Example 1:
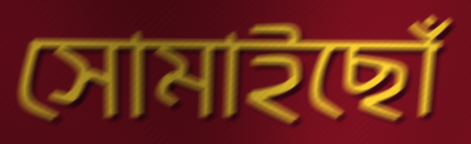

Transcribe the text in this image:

সোমাইছোঁ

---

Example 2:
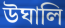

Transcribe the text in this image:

উঘালি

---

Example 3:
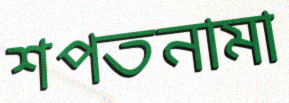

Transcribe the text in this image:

শপতনামা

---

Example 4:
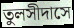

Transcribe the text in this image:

তুলসীদাসে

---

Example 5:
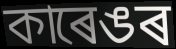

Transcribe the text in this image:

কাৰেঙৰ